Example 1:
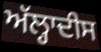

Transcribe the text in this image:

ਅੱਲ੍ਹਾਦੀਸ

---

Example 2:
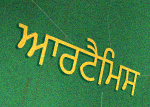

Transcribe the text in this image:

ਆਰਟੈਮਿਸ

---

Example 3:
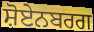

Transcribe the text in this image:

ਸ਼ੋਏਨਬਰਗ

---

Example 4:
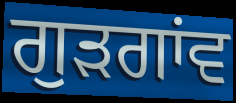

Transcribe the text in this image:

ਗੁੜਗਾਂਵ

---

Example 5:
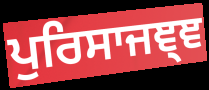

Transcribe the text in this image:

ਪੁਰਿਸਾਜਞ੍ਞ